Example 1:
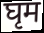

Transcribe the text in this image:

घृम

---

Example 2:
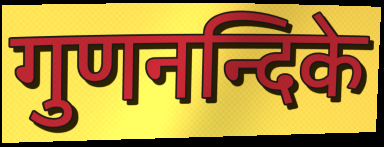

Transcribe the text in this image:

गुणनन्दिके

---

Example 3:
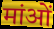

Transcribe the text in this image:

मांओं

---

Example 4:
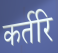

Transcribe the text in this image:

कर्तरि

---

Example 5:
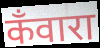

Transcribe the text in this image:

कँवारा